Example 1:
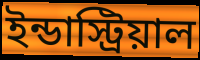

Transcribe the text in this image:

ইন্ডাস্ট্রিয়াল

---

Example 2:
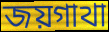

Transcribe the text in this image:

জয়গাথা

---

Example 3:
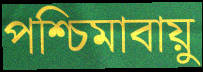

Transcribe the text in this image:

পশ্চিমাবায়ু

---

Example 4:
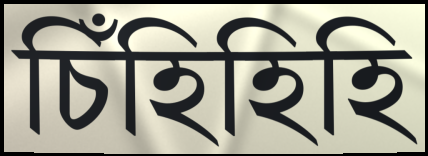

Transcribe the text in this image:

চিঁহিহিহি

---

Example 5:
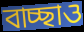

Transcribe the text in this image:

বাচ্ছাও